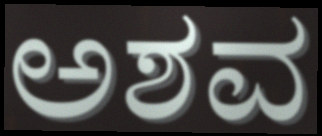
ಅಶವ